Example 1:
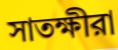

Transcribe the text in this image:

সাতক্ষীরা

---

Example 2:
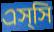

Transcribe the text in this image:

এস্‌সি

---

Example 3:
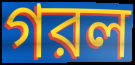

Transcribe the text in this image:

গরল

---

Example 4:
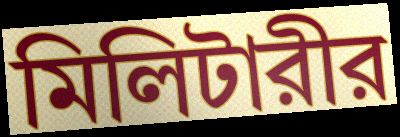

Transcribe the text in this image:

মিলিটারীর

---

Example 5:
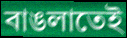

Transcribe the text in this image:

বাঙলাতেই